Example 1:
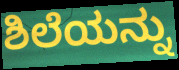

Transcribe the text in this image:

ಶಿಲೆಯನ್ನು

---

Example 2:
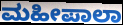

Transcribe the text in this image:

ಮಹೀಪಾಲಾ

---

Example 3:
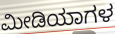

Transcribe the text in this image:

ಮೀಡಿಯಾಗಳ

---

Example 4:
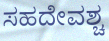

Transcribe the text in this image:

ಸಹದೇವಶ್ಚ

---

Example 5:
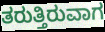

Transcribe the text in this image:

ತರುತ್ತಿರುವಾಗ